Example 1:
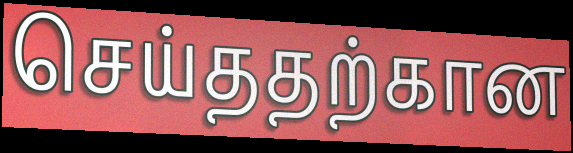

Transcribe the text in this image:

செய்ததற்கான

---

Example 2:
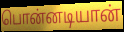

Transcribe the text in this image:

பொன்னடியான்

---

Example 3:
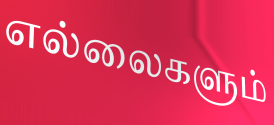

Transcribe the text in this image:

எல்லைகளும்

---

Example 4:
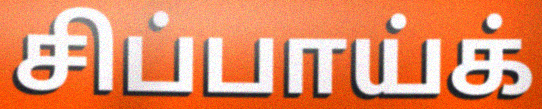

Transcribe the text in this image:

சிப்பாய்க்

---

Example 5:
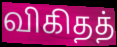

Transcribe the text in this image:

விகிதத்